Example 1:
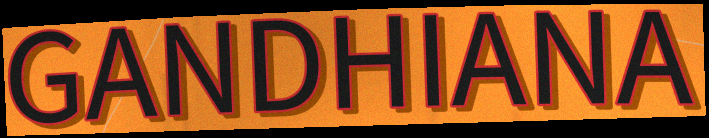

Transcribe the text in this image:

GANDHIANA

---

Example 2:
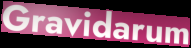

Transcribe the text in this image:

Gravidarum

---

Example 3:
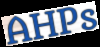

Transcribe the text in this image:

AHPs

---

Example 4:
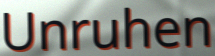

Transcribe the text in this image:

Unruhen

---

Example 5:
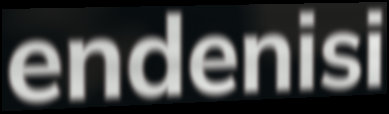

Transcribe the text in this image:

endenisi